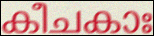
കീചകാഃ